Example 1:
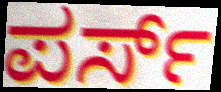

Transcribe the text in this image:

ಪರ್ಸ್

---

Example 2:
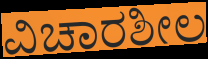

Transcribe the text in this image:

ವಿಚಾರಶೀಲ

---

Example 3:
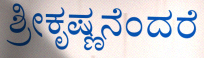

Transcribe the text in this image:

ಶ್ರೀಕೃಷ್ಣನೆಂದರೆ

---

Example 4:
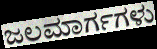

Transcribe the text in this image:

ಜಲಮಾರ್ಗಗಳು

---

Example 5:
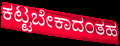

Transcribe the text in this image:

ಕಟ್ಟಬೇಕಾದಂತಹ